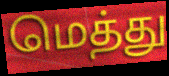
மெத்து